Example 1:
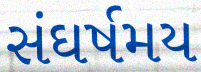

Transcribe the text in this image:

સંઘર્ષમય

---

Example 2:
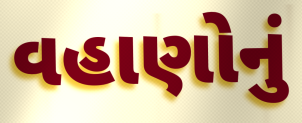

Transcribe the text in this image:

વહાણોનું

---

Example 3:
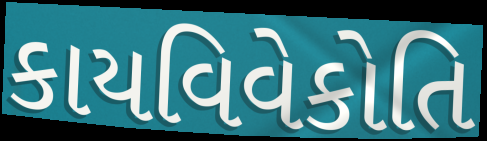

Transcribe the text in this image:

કાયવિવેકોતિ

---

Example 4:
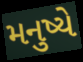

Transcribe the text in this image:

મનુષ્યે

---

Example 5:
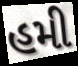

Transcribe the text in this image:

હમી